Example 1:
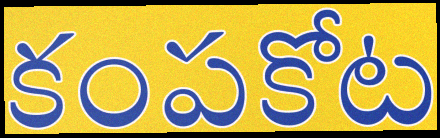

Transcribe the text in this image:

కంపకోట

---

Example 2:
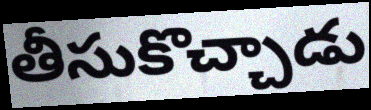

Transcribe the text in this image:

తీసుకొచ్చాడు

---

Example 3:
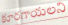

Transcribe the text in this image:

కూరగాయలని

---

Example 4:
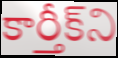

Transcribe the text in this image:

కార్తీక్‌ని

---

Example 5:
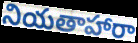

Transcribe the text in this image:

నియతాహారా